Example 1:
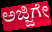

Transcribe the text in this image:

ಅಜ್ಜಿಗೇ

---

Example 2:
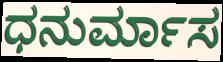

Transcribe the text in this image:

ಧನುರ್ಮಾಸ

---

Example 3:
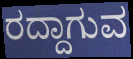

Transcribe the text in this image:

ರದ್ದಾಗುವ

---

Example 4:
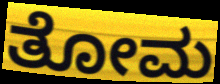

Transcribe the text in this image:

ತೋಮ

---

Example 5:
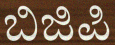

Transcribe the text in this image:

ಬಿಜಿಪಿ